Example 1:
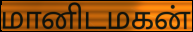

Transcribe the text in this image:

மானிடமகன்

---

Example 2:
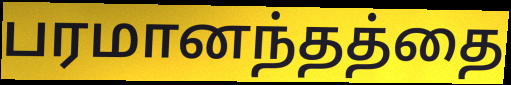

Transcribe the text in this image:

பரமானந்தத்தை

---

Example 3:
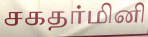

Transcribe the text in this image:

சகதர்மினி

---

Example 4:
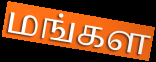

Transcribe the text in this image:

மங்கள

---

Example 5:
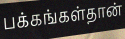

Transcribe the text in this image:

பக்கங்கள்தான்